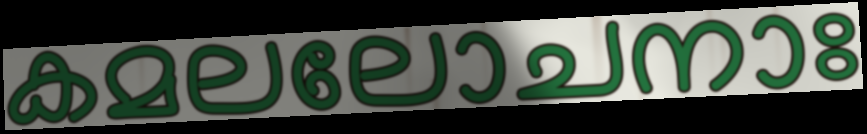
കമലലോചനാഃ